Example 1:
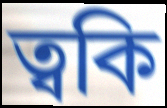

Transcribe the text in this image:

ত্বকি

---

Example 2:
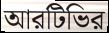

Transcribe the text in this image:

আরটিভির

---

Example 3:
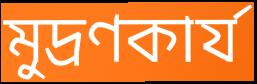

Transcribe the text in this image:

মুদ্রণকার্য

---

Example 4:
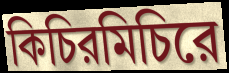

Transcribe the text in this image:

কিচিরমিচিরে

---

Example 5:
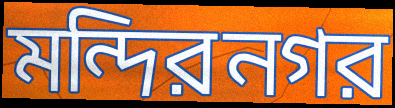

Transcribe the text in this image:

মন্দিরনগর